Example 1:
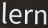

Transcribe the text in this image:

lern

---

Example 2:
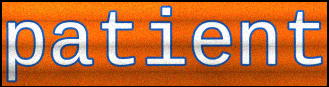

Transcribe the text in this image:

patient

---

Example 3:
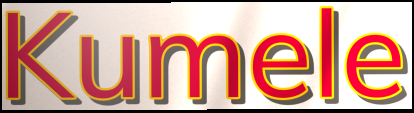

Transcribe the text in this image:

Kumele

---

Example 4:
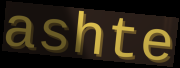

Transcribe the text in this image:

ashte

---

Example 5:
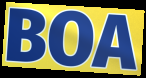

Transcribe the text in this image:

BOA